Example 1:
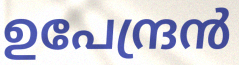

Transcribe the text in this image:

ഉപേന്ദ്രൻ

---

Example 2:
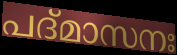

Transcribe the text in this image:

പദ്മാസനഃ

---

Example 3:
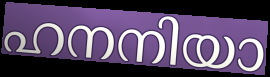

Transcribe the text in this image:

ഹനനിയാ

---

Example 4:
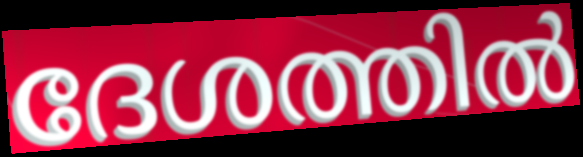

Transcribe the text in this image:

ദേശത്തിൽ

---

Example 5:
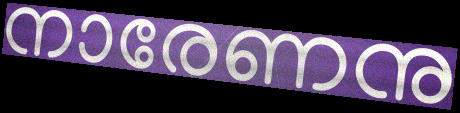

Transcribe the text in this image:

നാരേണനു